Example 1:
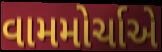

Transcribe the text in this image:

વામમોર્ચાએ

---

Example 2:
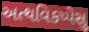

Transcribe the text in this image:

અત્થવિકપ્પેસુ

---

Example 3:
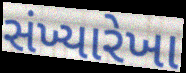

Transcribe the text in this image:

સંખ્યારેખા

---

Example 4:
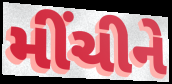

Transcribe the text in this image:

મીંચીને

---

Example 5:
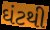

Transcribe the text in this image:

ઘંટથી